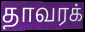
தாவரக்